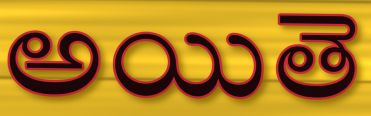
అయితె